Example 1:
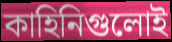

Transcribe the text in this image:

কাহিনিগুলোই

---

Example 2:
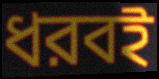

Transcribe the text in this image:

ধরবই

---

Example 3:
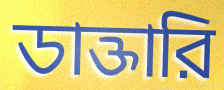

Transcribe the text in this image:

ডাক্তারি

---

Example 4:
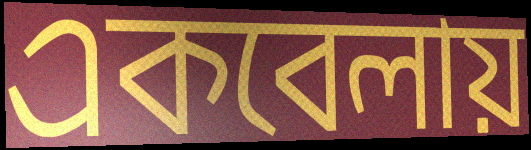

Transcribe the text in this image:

একবেলায়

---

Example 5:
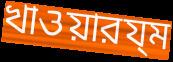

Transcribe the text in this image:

খাওয়ারয্ম